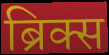
ब्रिक्स